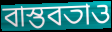
বাস্তবতাও